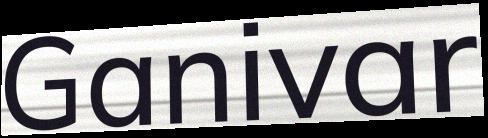
Ganivar